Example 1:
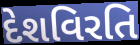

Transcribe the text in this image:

દેશવિરતિ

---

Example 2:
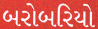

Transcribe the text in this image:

બરોબરિયો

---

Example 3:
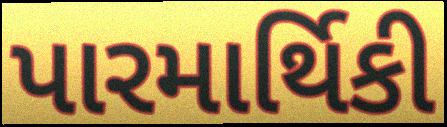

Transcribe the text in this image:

પારમાર્થિકી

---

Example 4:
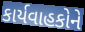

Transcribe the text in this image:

કાર્યવાહકોને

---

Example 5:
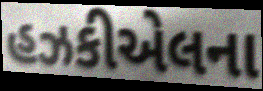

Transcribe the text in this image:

હઝકીએલના